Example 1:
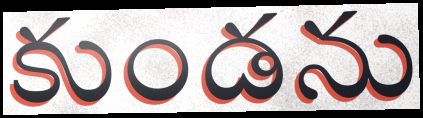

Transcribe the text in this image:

కుండను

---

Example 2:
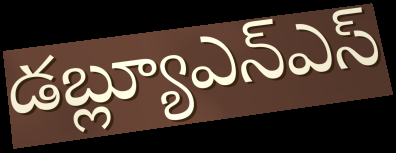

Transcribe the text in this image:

డబ్ల్యూఎన్ఎస్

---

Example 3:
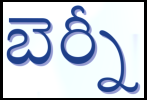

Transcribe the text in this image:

బెర్నీ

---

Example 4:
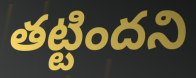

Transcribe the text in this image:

తట్టిందని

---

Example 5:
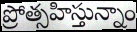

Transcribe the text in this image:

ప్రోత్సహిస్తున్నాం